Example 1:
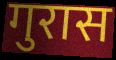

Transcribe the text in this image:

गुरास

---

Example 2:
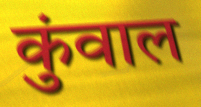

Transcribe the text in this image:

कुंवाल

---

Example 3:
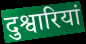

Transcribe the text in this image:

दुश्वारियां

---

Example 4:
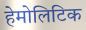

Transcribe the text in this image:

हेमोलिटिक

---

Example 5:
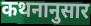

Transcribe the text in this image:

कथनानुसार